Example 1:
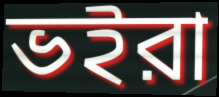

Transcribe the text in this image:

ভইরা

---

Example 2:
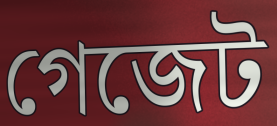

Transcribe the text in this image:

গেজেট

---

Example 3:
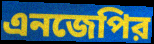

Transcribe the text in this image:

এনজেপির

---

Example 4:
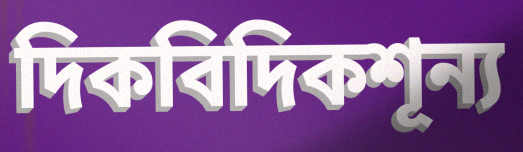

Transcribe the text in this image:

দিকবিদিকশূন্য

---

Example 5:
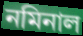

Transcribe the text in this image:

নমিনাল